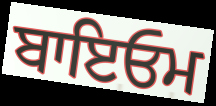
ਬਾਇਓਮ